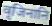
वृजिनानि